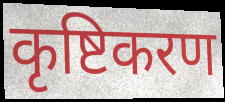
कृष्टिकरण